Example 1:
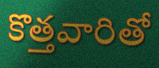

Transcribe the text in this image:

కొత్తవారితో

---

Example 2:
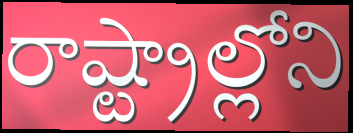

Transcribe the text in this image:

రాష్ట్రాల్లోని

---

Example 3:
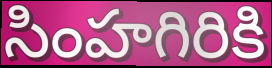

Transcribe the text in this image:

సింహగిరికి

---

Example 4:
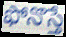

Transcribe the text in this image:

ఫోనొస్తే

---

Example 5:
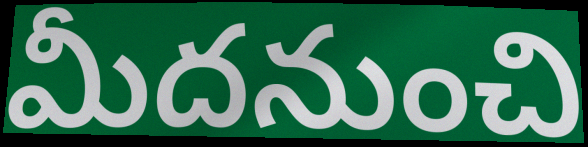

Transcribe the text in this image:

మీదనుంచి